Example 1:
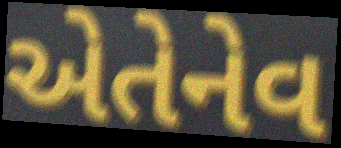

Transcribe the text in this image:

એતેનેવ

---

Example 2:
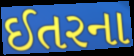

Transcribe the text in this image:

ઈતરના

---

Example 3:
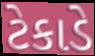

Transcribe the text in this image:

ટેકાડે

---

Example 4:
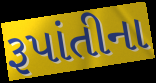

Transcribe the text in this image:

રૂપાંતીના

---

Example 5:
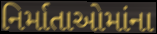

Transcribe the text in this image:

નિર્માતાઓમાંના